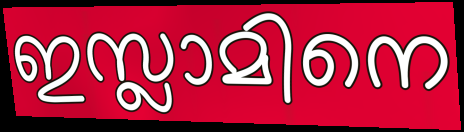
ഇസ്ലാമിനെ